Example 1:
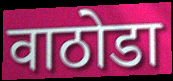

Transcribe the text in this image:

वाठोडा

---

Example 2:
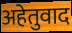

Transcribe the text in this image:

अहेतुवाद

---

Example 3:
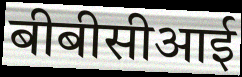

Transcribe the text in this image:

बीबीसीआई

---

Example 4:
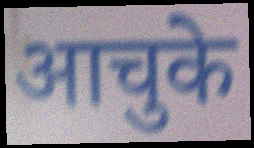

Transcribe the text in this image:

आचुके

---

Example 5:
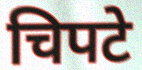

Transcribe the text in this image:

चिपटे